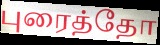
புரைத்தோ